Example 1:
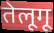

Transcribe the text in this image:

तेलूगू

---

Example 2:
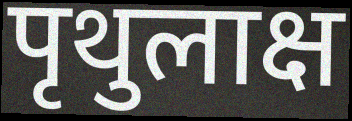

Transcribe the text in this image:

पृथुलाक्ष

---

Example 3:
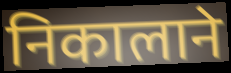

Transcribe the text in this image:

निकालाने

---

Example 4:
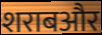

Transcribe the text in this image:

शराबऔर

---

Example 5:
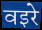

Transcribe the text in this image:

वइरे